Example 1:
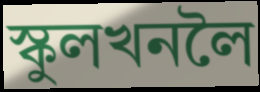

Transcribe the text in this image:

স্কুলখনলৈ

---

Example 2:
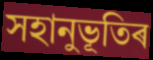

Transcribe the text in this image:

সহানুভূতিৰ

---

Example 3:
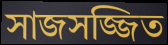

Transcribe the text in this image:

সাজসজ্জিত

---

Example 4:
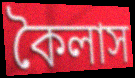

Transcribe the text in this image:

কৈলাস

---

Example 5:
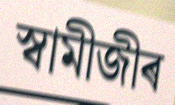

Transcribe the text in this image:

স্বামীজীৰ